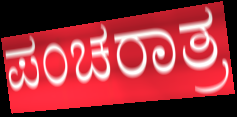
ಪಂಚರಾತ್ರ